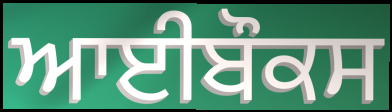
ਆਈਬੌਕਸ